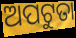
ଅପଟୁତା